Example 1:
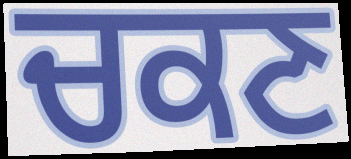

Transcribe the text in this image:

ਚਕਣ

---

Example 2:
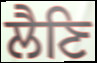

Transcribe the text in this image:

ਲੈਣਿ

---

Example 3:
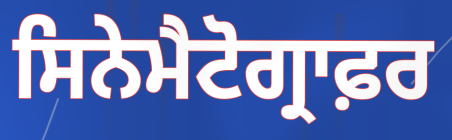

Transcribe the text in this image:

ਸਿਨੇਮੈਟੋਗ੍ਰਾਫ਼ਰ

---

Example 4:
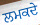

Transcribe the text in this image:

ਲਮਕਦੇ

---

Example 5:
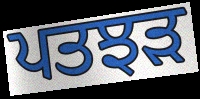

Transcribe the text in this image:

ਪਤਝਡ਼